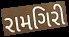
રામગિરી